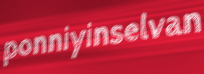
ponniyinselvan